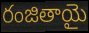
రంజితాయై